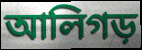
আলিগড়